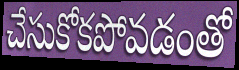
చేసుకోకపోవడంతో